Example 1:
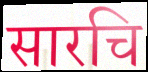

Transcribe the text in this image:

सारचि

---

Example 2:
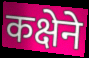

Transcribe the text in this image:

कक्षेने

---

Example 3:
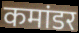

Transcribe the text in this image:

कमांडर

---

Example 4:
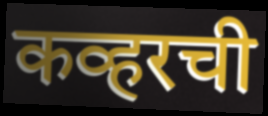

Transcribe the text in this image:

कव्हरची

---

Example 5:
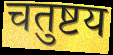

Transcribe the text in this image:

चतुष्टय